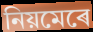
নিয়মেৰে